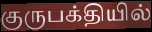
குருபக்தியில்